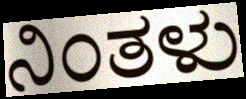
ನಿಂತಳು